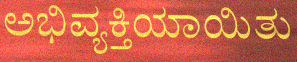
ಅಭಿವ್ಯಕ್ತಿಯಾಯಿತು